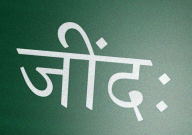
जींदः